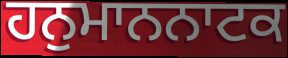
ਹਨੁਮਾਨਨਾਟਕ